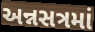
અન્નસત્રમાં